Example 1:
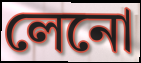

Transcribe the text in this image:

লেনো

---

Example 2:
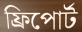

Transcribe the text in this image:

ফ্রিপোর্ট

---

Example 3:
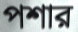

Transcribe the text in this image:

পশার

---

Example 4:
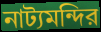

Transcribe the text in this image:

নাট্যমন্দির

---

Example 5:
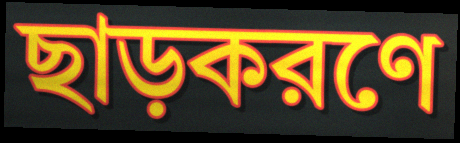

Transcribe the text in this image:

ছাড়করণে